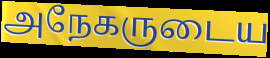
அநேகருடைய